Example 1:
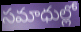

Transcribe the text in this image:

సమాధుల్లో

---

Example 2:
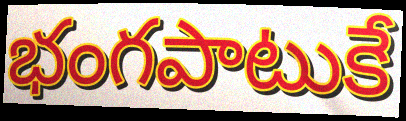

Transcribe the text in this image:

భంగపాటుకే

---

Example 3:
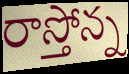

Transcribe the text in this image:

రాస్తోన్న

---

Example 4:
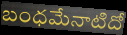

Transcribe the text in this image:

బంధమేనాటిదో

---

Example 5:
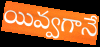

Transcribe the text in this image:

యివ్వగానే